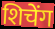
शिचेंग